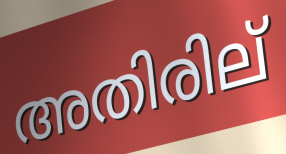
അതിരില്